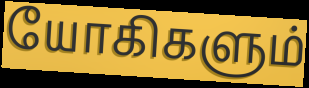
யோகிகளும்